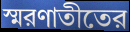
স্মরণাতীতের